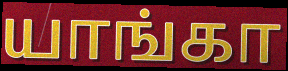
யாங்கா